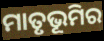
ମାତୃଭୂମିର